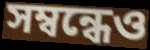
সম্বন্ধেও